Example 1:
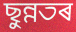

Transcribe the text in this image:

ছুন্নতৰ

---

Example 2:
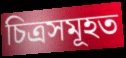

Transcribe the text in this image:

চিত্ৰসমূহত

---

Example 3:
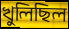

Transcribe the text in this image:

খুলিছিল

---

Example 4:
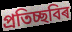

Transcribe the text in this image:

প্ৰতিচ্ছবিৰ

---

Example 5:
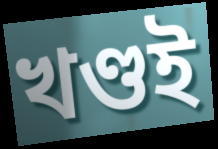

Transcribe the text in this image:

খণ্ডই